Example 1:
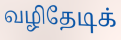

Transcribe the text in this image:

வழிதேடிக்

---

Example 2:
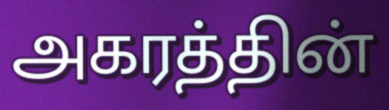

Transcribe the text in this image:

அகரத்தின்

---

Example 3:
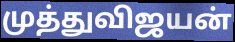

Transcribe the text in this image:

முத்துவிஜயன்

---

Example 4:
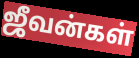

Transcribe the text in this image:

ஜீவன்கள்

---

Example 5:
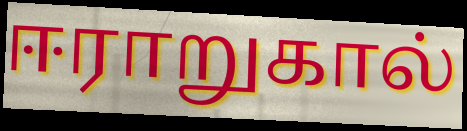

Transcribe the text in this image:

ஈராறுகால்